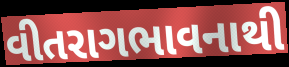
વીતરાગભાવનાથી